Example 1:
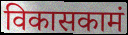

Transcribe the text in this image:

विकासकामं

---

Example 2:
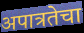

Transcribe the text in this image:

अपात्रतेचा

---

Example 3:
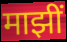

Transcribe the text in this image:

माझीं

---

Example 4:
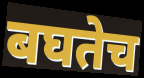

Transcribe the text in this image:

बघतेच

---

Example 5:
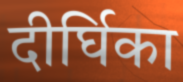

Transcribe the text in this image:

दीर्घिका